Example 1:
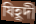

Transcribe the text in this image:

যিহূদী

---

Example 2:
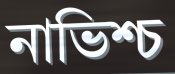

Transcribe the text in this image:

নাভিশ্চ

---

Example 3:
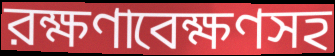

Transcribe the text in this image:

রক্ষণাবেক্ষণসহ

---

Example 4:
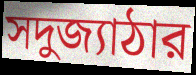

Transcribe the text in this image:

সদুজ্যাঠার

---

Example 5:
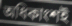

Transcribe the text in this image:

অধিকাংশই